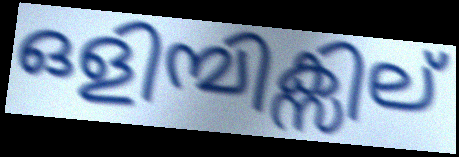
ഒളിമ്പിക്സില്